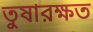
তুষারক্ষত